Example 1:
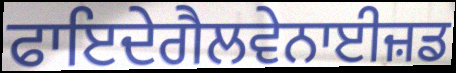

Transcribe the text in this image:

ਫਾਇਦੇਗੈਲਵੇਨਾਈਜ਼ਡ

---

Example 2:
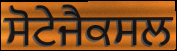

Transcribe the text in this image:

ਸੋਟੇਜੈਕਸਲ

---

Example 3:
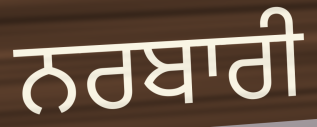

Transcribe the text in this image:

ਨਰਬਾਰੀ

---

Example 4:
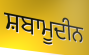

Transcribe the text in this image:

ਸ਼ਬਾਮੂਦੀਨ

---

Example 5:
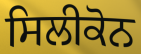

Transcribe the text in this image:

ਸਿਲੀਕੋਨ